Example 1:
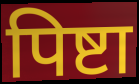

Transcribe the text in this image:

पिष्टा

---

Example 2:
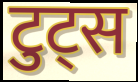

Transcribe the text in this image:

टुट्स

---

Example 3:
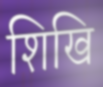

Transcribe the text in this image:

शिखि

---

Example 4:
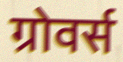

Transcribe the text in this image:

ग्रोवर्स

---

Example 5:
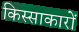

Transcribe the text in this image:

किस्साकारों